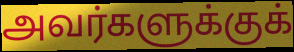
அவர்களுக்குக்